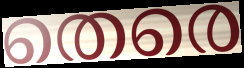
തെരെ